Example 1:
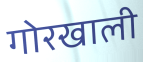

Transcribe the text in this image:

गोरखाली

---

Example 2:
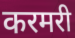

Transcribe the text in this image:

करमरी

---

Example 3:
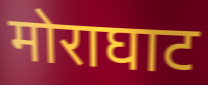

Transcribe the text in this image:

मोराघाट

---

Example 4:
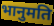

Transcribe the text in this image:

भानुमति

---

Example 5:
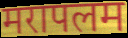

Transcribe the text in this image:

मरापलम